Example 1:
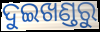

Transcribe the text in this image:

ଦୁଇଖଣ୍ଡରୁ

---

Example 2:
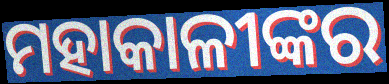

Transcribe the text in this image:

ମହାକାଳୀଙ୍କର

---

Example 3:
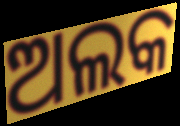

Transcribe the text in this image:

ଅଲକ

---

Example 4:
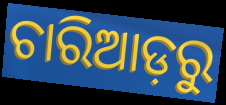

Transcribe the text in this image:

ଚାରିଆଡ଼ରୁ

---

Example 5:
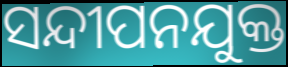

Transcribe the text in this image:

ସନ୍ଦୀପନଯୁକ୍ତ